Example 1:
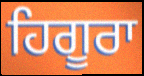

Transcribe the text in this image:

ਹਿਗੂਰਾ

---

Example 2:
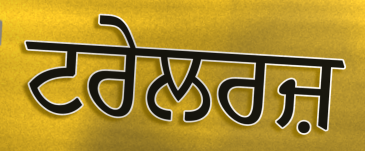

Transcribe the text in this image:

ਟਰੇਲਰਜ਼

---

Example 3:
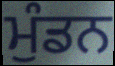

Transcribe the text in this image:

ਮੁੰਡਨ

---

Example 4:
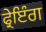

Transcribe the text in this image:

ਫ੍ਰੇਇੰਗ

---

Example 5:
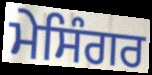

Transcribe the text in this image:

ਮੇਸਿੰਗਰ